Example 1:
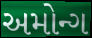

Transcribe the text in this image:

અમોન્ગ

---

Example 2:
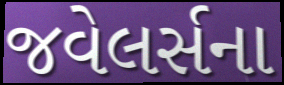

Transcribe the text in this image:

જવેલર્સના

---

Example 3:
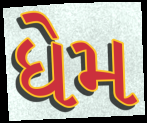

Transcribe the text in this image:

ધેમ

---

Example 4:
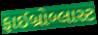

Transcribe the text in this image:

ફાઈબ્રોબ્લાસ્ટ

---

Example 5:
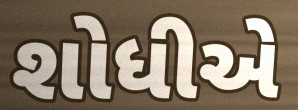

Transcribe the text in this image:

શોધીએ